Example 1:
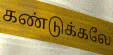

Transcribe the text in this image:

கண்டுக்கலே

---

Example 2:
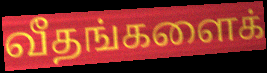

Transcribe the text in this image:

வீதங்களைக்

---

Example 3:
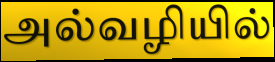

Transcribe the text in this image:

அல்வழியில்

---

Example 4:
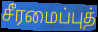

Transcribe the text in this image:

சீரமைப்புத்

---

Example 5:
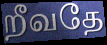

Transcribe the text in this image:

றீவதே